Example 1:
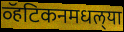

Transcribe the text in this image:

व्हॅटिकनमधल्या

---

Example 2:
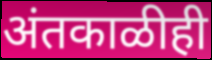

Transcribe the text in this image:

अंतकाळीही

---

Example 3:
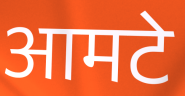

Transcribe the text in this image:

आमटे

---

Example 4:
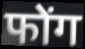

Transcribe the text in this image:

फोंग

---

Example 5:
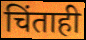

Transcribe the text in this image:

चिंताही